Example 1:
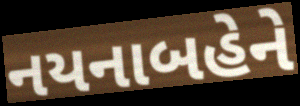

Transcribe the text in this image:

નયનાબહેને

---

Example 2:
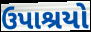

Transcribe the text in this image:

ઉપાશ્રયો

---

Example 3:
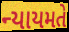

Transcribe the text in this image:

ન્યાયમતે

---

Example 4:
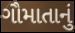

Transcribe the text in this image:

ગૌમાતાનું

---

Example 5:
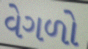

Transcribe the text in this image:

વેગળો